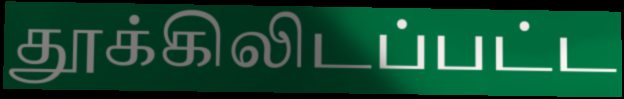
தூக்கிலிடப்பட்ட